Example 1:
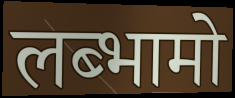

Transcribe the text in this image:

लब्भामो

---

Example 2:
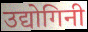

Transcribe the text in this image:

उद्योगिनी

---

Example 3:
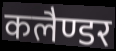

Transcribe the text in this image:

कलैण्डर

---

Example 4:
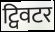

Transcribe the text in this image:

ट्विवटर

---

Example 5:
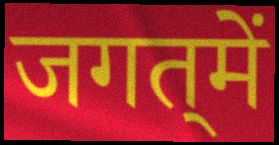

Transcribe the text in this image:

जगत्‌में